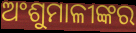
ଅଂଶୁମାଳୀଙ୍କର